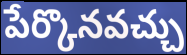
పేర్కొనవచ్చు